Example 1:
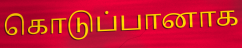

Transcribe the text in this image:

கொடுப்பானாக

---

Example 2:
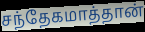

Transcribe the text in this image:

சந்தேகமாத்தான்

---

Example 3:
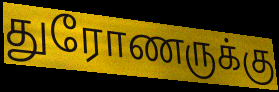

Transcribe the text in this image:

துரோணருக்கு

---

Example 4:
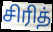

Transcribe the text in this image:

சிரித்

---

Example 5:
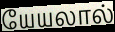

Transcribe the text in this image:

யேயலால்